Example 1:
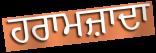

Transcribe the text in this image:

ਹਰਾਮਜ਼ਾਦਾ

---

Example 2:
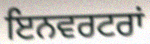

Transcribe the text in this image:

ਇਨਵਰਟਰਾਂ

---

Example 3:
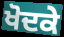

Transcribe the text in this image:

ਖੋਦਕੇ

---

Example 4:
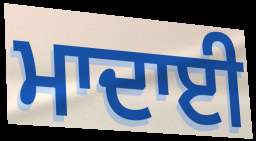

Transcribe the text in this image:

ਮਾਦਾਈ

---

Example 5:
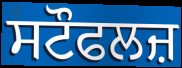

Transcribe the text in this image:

ਸਟੌਫਲਜ਼